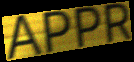
APPR